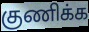
குணிக்க